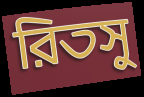
রিতসু